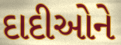
દાદીઓને